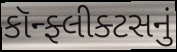
કૉન્ફ્લીક્ટસનું